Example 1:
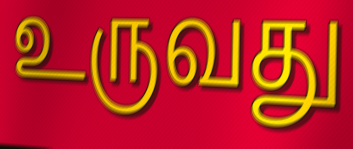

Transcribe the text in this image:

உருவது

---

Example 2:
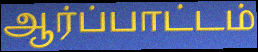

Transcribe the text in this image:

ஆர்ப்பாட்டம்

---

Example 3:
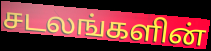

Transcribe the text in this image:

சடலங்களின்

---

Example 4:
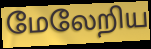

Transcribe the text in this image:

மேலேறிய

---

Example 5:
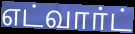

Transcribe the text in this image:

எட்வார்ட்